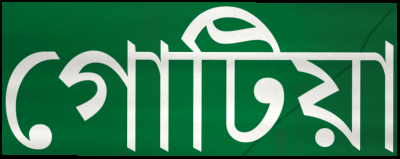
গোটিয়া